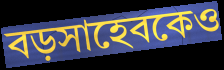
বড়সাহেবকেও